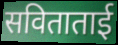
सविताताई